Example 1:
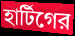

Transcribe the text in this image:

হার্টিগের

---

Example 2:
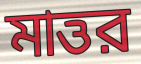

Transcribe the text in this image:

মাত্তর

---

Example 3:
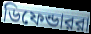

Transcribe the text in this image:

ডিফেন্ডাররা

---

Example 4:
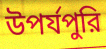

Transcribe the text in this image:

উপর্যপুরি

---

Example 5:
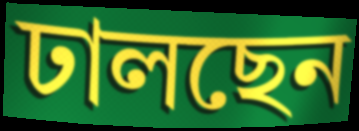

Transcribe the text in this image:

ঢালছেন